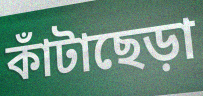
কাঁটাছেড়া